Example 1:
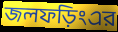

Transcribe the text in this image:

জলফড়িংএর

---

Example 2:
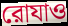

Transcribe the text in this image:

রোযাও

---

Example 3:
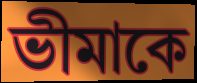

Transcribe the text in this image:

ভীমাকে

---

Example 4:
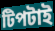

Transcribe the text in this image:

টিপটাই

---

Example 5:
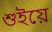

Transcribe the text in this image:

শুইয়ে